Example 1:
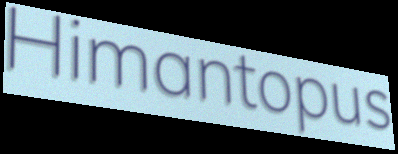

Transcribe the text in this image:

Himantopus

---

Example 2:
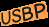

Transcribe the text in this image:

USBP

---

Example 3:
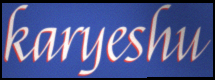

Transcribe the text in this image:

karyeshu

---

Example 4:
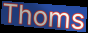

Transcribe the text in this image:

Thoms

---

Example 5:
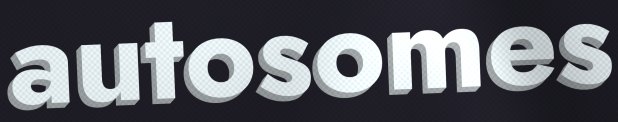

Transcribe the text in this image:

autosomes